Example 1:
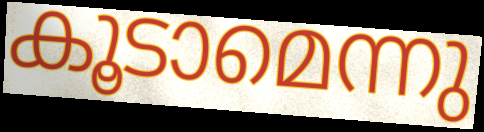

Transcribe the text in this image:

കൂടാമെന്നു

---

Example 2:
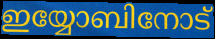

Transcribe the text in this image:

ഇയ്യോബിനോട്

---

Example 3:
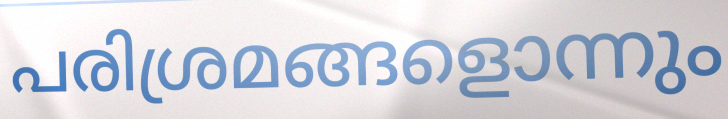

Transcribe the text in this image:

പരിശ്രമങ്ങളൊന്നും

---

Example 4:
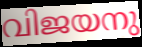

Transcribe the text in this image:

വിജയനു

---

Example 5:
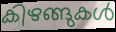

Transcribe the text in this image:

കിഴങ്ങുകൾ